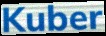
Kuber